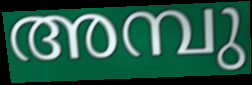
അമ്പു